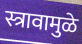
स्त्रावामुळे